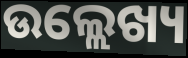
ଉଲ୍ଲେଖ୍ୟ